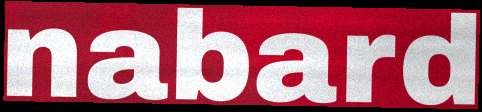
nabard